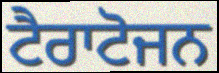
ਟੈਰਾਟੋਜਨ